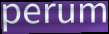
perum